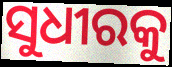
ସୁଧୀରକୁ